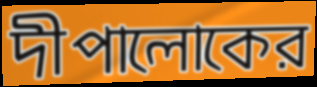
দীপালোকের